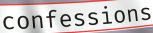
confessions